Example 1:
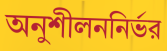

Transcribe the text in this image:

অনুশীলননির্ভর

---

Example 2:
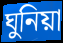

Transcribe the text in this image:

ঘুনিয়া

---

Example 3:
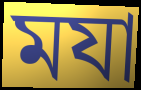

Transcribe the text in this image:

মযা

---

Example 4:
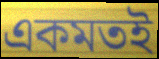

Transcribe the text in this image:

একমতই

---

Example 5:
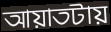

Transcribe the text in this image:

আয়াতটায়